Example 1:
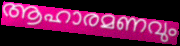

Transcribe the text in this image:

ആഹാരമണവും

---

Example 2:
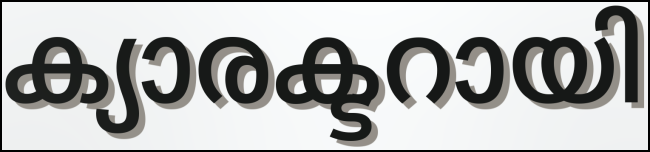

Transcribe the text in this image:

ക്യാരക്ടറായി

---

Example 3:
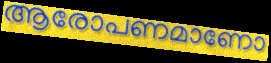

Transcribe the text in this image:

ആരോപണമാണോ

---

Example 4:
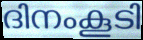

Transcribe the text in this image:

ദിനംകൂടി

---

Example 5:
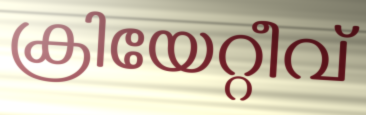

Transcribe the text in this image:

ക്രിയേറ്റീവ്